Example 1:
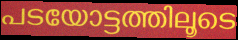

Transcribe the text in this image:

പടയോട്ടത്തിലൂടെ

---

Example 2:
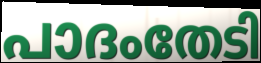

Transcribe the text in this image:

പാദംതേടി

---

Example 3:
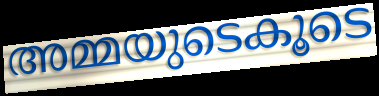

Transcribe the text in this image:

അമ്മയുടെകൂടെ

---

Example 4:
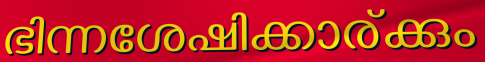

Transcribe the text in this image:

ഭിന്നശേഷിക്കാര്ക്കും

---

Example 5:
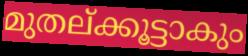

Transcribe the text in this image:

മുതല്ക്കൂട്ടാകും